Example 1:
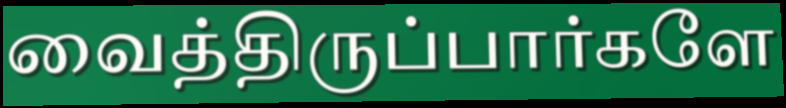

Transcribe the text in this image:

வைத்திருப்பார்களே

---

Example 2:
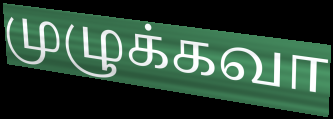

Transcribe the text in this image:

முழுக்கவா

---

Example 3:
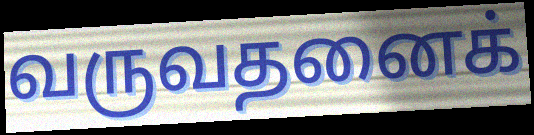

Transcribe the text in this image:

வருவதனைக்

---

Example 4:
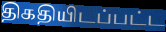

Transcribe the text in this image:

திகதியிடப்பட்ட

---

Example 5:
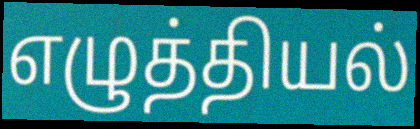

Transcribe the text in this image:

எழுத்தியல்